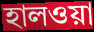
হালওয়া